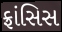
ફ્રાંસિસ